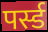
पर्स्ड